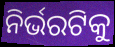
ନିର୍ଭରଟିକୁ